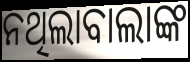
ନଥିଲାବାଲାଙ୍କ